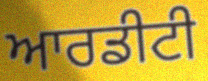
ਆਰਡੀਟੀ